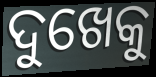
ଦୁଖେକୁ